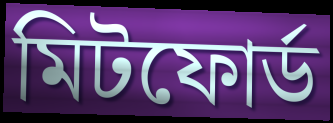
মিটফোর্ড